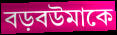
বড়বউমাকে